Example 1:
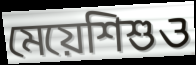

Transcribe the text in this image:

মেয়েশিশুও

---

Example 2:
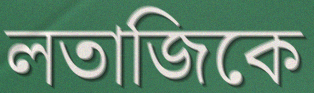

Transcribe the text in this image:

লতাজিকে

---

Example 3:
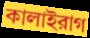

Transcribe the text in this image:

কালাইরাগ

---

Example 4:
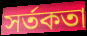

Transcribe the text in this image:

সর্তকতা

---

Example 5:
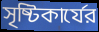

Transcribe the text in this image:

সৃষ্টিকার্যের